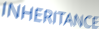
INHERITANCE